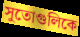
সুতোগুলিকে